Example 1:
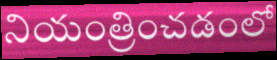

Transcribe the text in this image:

నియంత్రించడంలో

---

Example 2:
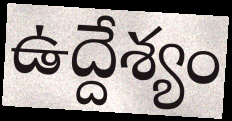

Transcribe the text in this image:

ఉద్దేశ్యం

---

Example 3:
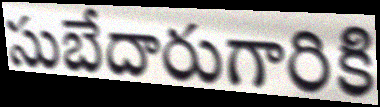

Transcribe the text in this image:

సుబేదారుగారికి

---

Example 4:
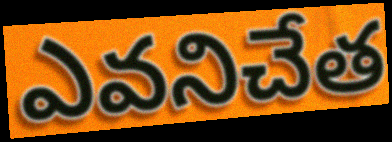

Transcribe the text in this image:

ఎవనిచేత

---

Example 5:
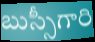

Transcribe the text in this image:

బుస్సీగారి